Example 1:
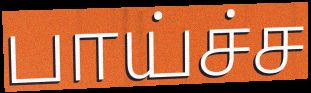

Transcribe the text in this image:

பாய்ச்ச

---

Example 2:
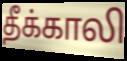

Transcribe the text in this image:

தீக்காலி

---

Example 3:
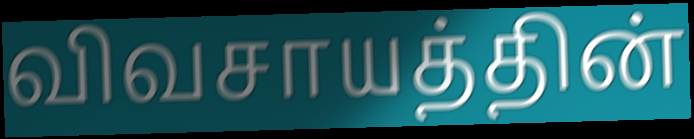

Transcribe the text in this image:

விவசாயத்தின்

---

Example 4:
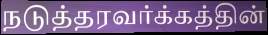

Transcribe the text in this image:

நடுத்தரவர்க்கத்தின்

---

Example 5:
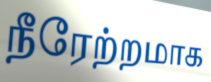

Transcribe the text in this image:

நீரேற்றமாக